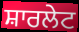
ਸ਼ਾਰਲੇਟ